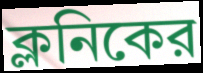
ক্লনিকের